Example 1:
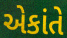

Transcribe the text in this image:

એકાંતે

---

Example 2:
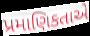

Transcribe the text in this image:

પ્રમાણિકતાએ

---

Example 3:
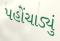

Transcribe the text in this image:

પહોંચાડ્યું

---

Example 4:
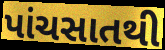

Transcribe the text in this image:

પાંચસાતથી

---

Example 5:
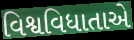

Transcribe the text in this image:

વિશ્વવિધાતાએ